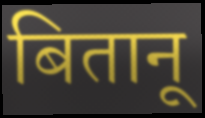
बितानू